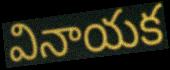
వినాయక